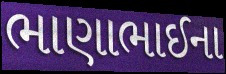
ભાણાભાઈના